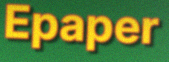
Epaper